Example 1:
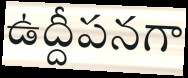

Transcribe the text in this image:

ఉద్దీపనగా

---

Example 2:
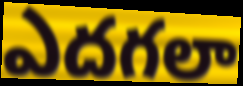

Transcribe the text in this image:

ఎదగలా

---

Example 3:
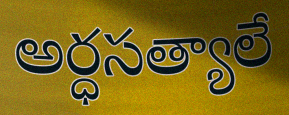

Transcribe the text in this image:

అర్ధసత్యాలే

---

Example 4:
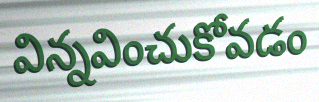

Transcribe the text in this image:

విన్నవించుకోవడం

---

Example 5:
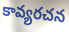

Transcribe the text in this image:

కావ్యరచన